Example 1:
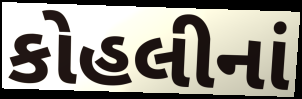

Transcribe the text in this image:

કોહલીનાં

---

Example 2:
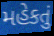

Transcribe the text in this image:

મહેકતું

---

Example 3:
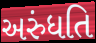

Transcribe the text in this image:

અરુંધતિ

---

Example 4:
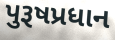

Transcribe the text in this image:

પુરૂષપ્રધાન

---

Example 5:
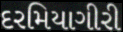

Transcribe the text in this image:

દરમિયાગીરી